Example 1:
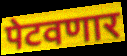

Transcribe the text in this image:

पेटवणार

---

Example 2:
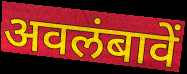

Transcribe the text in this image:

अवलंबावें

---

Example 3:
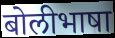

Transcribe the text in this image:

बोलीभाषा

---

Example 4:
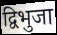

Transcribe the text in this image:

द्विभुजा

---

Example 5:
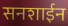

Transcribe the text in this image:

सनशाईन